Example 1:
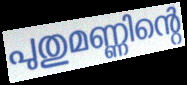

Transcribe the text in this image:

പുതുമണ്ണിന്റെ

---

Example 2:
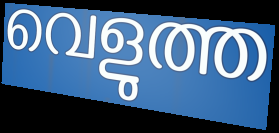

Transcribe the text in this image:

വെളുത്ത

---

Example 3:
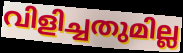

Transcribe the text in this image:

വിളിച്ചതുമില്ല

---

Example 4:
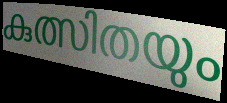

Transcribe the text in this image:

കുത്സിതയും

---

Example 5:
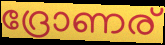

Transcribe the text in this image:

ദ്രോണര്